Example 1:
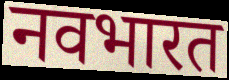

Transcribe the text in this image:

नवभारत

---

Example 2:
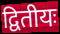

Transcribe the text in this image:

द्वितीयः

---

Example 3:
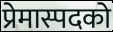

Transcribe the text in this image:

प्रेमास्पदको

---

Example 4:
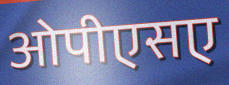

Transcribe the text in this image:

ओपीएसए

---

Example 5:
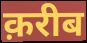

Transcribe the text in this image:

क़रीब